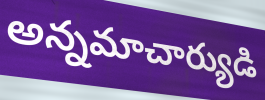
అన్నమాచార్యుడి